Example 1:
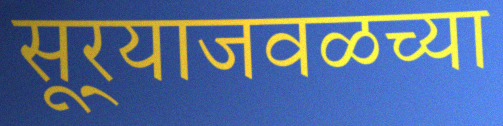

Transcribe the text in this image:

सूर्याजवळच्या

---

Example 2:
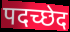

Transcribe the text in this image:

पदच्छेद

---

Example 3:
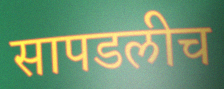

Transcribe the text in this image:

सापडलीच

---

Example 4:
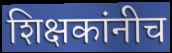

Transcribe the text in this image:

शिक्षकांनीच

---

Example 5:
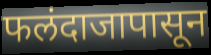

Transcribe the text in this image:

फलंदाजापासून